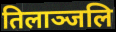
तिलाञ्जलि